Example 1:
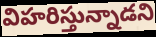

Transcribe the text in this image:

విహరిస్తున్నాడని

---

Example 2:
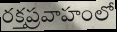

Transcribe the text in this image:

రక్తప్రవాహంలో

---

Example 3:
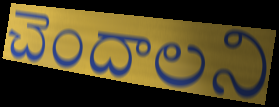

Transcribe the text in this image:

చెందాలని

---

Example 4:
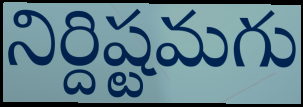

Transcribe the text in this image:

నిర్దిష్టమగు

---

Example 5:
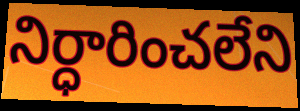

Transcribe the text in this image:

నిర్ధారించలేని